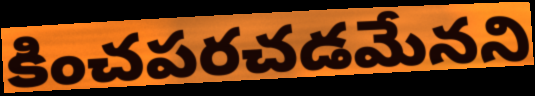
కించపరచడమేనని